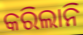
କରିଲାନି